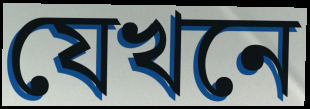
যেখনে